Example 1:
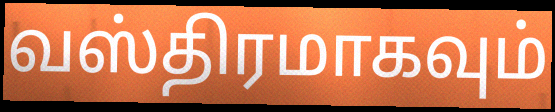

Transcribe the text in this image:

வஸ்திரமாகவும்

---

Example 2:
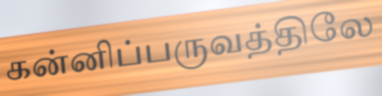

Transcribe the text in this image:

கன்னிப்பருவத்திலே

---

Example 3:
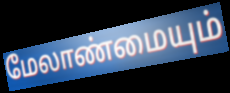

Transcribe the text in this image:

மேலாண்மையும்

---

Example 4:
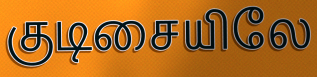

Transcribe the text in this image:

குடிசையிலே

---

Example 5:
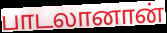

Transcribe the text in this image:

பாடலானான்